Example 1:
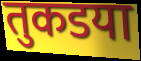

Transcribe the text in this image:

तुकडया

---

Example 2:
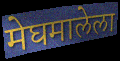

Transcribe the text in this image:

मेघमालेला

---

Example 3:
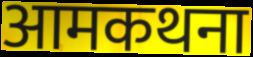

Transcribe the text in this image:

आमकथना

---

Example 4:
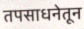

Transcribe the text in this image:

तपसाधनेतून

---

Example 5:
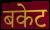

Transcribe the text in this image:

बकेट